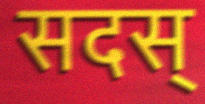
सदस्